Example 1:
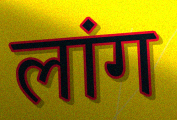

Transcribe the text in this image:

लांग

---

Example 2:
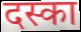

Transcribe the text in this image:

दस्का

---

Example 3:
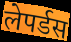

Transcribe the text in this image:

लेपर्डस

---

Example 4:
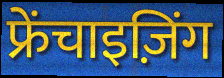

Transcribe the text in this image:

फ्रेंचाइज़िंग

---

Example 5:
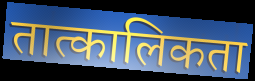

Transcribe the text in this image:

तात्कालिकता